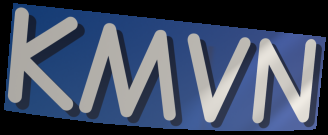
KMVN